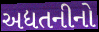
અદ્યતનીનો